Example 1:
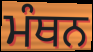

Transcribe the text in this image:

ਮੰਥਨ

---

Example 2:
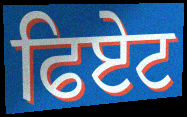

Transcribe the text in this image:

ਫਿਏਟ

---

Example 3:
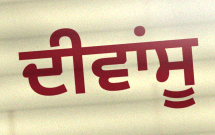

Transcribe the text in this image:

ਦੀਵਾਂਸੂ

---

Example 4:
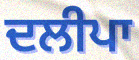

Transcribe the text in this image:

ਦਲੀਪਾ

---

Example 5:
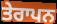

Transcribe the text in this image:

ਤੇਰਾਪਨ